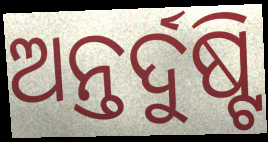
ଅନ୍ତର୍ଦୁଷ୍ଟି